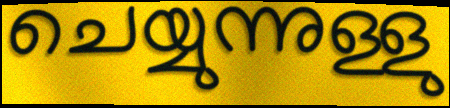
ചെയ്യുന്നുള്ളു